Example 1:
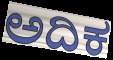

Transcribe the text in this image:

ಅದಿಕ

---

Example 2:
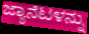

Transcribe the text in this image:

ಜ್ಯಾನೆಟಳನ್ನು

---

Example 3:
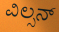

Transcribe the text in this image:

ವಿಲ್ಸನ್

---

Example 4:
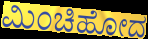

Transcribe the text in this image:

ಮಿಂಚಿಹೋದ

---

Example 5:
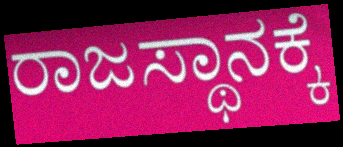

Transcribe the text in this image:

ರಾಜಸ್ಥಾನಕ್ಕೆ